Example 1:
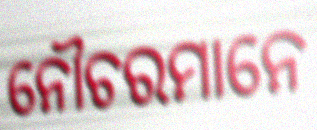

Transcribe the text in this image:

ନୌଚରମାନେ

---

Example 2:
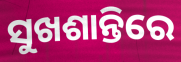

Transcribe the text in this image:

ସୁଖଶାନ୍ତିରେ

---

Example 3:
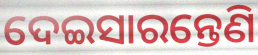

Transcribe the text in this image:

ଦେଇସାରନ୍ତେଣି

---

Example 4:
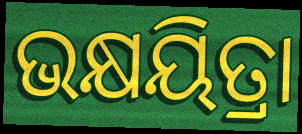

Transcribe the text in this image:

ଭକ୍ଷୟିତ୍ରା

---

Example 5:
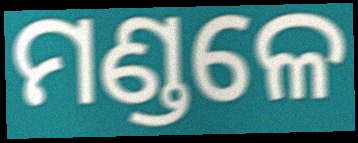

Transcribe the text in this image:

ମଣ୍ଡଳେ